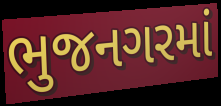
ભુજનગરમાં